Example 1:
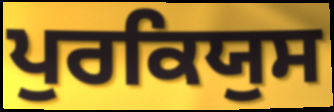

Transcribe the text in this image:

ਪੁਰਕਿਯੁਸ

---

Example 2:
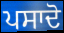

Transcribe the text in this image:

ਪਸਾਦੋ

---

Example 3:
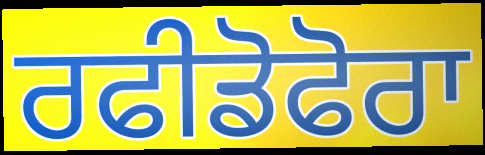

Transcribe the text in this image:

ਰਫੀਡੋਫੋਰਾ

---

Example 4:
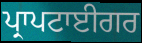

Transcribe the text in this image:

ਪ੍ਰਾਪਟਾਈਗਰ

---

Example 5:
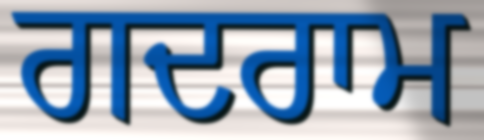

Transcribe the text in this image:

ਗਦਰਾਮ